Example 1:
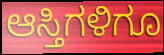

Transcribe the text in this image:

ಆಸ್ತಿಗಳಿಗೂ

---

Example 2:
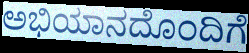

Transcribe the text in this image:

ಅಭಿಯಾನದೊಂದಿಗೆ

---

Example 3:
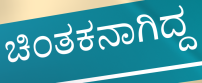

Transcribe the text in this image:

ಚಿಂತಕನಾಗಿದ್ದ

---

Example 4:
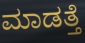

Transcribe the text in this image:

ಮಾಡತ್ತೆ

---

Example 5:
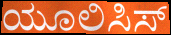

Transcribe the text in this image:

ಯೂಲಿಸಿಸ್